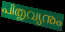
പിതൃവ്യനും